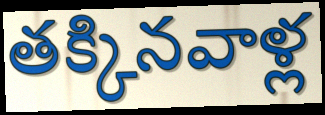
తక్కినవాళ్ల